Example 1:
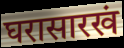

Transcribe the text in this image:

घरासारखं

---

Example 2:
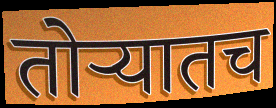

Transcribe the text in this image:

तोऱ्यातच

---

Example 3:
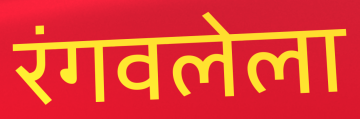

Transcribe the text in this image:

रंगवलेला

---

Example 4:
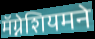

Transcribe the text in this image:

मॅग्नेशियमने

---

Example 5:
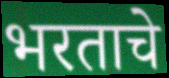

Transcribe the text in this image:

भरताचे